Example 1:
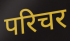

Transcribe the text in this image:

परिचर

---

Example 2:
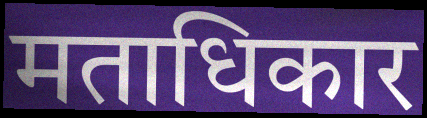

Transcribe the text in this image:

मताधिकार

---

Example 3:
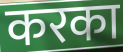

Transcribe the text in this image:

करका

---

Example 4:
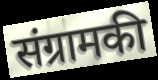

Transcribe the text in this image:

संग्रामकी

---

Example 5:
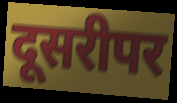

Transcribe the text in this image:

दूसरीपर